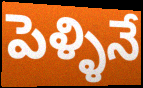
పెళ్ళినే